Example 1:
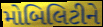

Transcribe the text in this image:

મોબિલિટીને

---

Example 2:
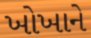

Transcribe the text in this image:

ખોખાને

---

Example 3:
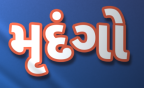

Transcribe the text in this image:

મૃદંગો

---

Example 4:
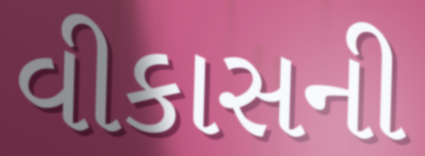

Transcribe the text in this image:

વીકાસની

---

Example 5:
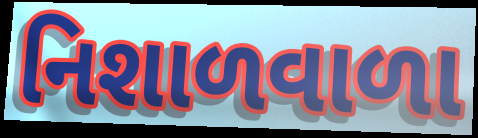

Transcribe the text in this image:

નિશાળવાળા